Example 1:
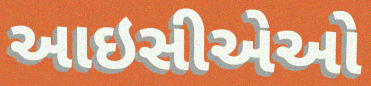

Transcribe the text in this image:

આઇસીએઓ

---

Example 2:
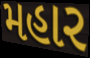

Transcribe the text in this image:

મહાર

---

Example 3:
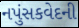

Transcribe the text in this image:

નપુંસકવેદની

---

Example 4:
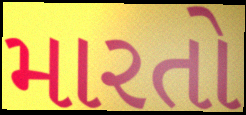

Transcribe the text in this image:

મારતો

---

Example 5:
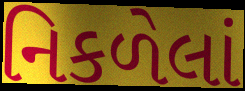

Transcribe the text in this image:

નિકળેલાં